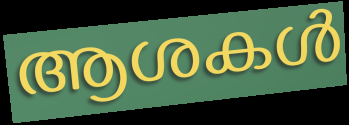
ആശകൾ